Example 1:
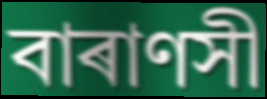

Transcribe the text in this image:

বাৰাণসী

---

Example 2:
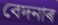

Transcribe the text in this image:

বেদনাৰ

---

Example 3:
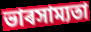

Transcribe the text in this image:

ভাৰসাম্যতা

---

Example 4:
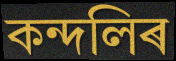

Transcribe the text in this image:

কন্দলিৰ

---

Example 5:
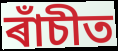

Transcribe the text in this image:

ৰাঁচীত